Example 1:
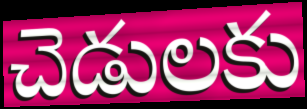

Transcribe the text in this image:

చెడులకు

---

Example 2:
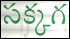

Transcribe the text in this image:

సక్కగ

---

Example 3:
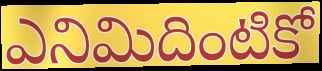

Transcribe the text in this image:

ఎనిమిదింటికో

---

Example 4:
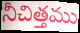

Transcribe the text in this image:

నీచిత్తము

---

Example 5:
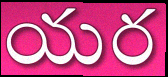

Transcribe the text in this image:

యర